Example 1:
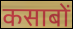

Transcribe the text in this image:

कसाबों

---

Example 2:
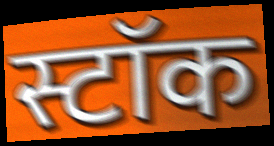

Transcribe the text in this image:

स्‍टॉक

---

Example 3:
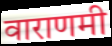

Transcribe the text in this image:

वाराणमी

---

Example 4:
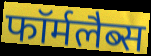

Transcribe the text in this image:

फॉर्मलैब्स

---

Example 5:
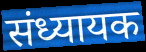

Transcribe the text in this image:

संध्यायक